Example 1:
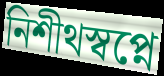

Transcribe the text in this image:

নিশীথস্বপ্নে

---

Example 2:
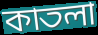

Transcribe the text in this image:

কাতলা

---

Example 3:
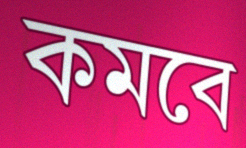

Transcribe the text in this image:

কমবে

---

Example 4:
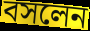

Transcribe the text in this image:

বসলেন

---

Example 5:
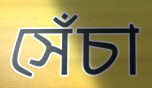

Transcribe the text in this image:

সেঁচা